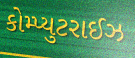
કોમ્પ્યુટરાઈઝ